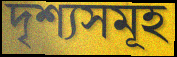
দৃশ্যসমূহ